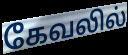
கேவலில்